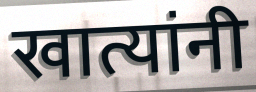
खात्यांनी